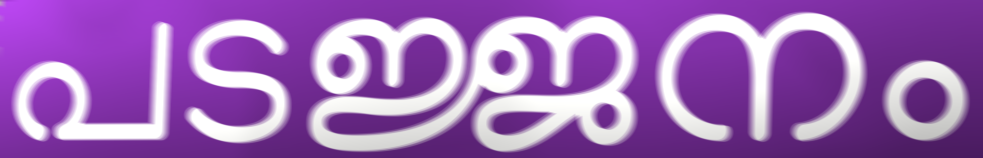
പടജ്ജനം